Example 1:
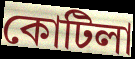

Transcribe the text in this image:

কোটিলা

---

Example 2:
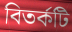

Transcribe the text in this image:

বিতর্কটি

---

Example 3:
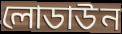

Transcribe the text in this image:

লোডাউন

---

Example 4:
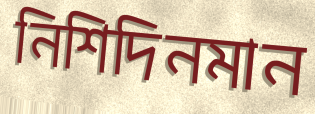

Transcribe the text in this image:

নিশিদিনমান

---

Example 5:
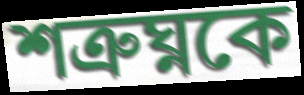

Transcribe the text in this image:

শত্রুঘ্নকে